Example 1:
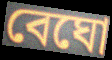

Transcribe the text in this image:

বেঘো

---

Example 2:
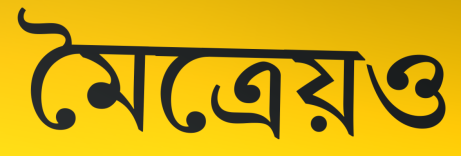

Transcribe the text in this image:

মৈত্রেয়ও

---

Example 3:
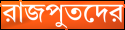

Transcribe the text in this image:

রাজপুতদের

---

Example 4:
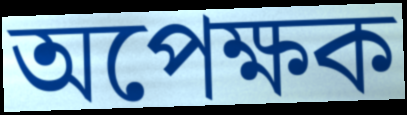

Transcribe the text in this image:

অপেক্ষক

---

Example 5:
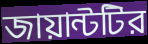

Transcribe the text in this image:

জায়ান্টটির